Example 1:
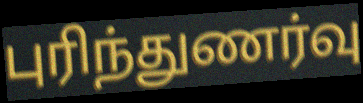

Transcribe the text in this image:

புரிந்துணர்வு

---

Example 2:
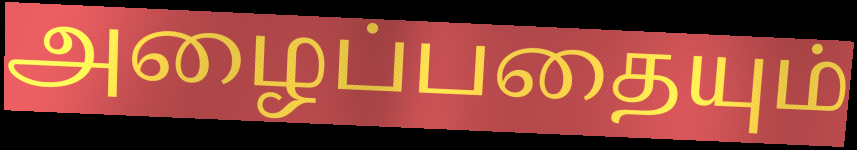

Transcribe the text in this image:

அழைப்பதையும்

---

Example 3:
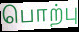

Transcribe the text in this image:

பொற்பு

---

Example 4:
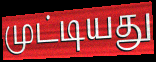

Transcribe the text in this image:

முட்டியது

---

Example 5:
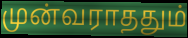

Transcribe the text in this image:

முன்வராததும்